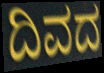
ದಿವದ